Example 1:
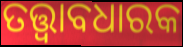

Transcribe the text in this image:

ତତ୍ତ୍ୱାବଧାରକ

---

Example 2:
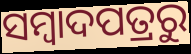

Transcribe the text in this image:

ସମ୍ବାଦପତ୍ରରୁ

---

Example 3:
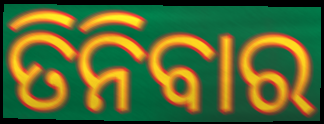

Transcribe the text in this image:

ତିନିବାର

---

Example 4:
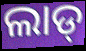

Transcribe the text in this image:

ଲାଡ୍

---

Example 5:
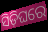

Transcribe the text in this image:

ସିଡ଼ିଘରେ